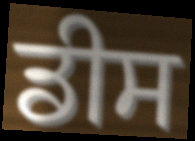
ਡੀਸ